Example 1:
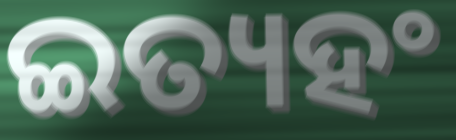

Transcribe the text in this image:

ଇତ୍ୟହଂ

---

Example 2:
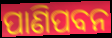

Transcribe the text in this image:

ପାଣିପବନ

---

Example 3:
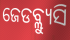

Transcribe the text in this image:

ଜେଡବ୍ଲ୍ୟୁସି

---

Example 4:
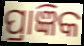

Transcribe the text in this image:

ପ୍ରାଜ୍ଞିକ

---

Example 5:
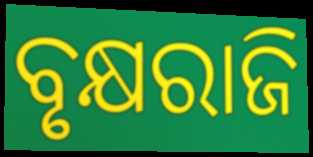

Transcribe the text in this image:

ବୃକ୍ଷରାଜି